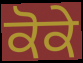
ਕੋਕੇ